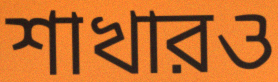
শাখারও